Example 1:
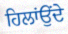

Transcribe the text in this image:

ਹਿਲਾਂਉਂਦੇ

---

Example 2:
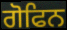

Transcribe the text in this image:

ਗੋਫਿਨ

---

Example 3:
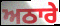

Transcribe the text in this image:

ਅਠਾਰੇ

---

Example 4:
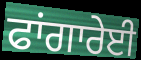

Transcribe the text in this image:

ਫਾਂਗਾਰੇਈ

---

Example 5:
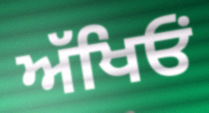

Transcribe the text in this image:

ਅੱਖਿਓਂ